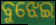
ବୁଝେଇ